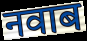
नवाब